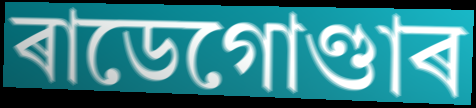
ৰাডেগোণ্ডাৰ